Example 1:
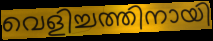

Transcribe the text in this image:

വെളിച്ചത്തിനായി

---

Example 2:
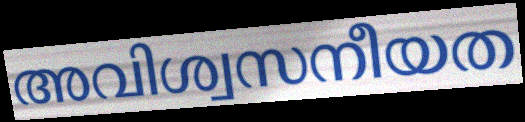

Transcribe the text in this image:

അവിശ്വസനീയത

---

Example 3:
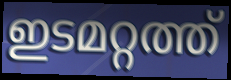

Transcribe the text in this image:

ഇടമറ്റത്ത്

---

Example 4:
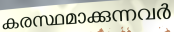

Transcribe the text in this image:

കരസ്ഥമാക്കുന്നവർ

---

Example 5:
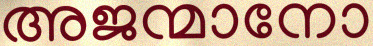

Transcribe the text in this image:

അജന്മാനോ